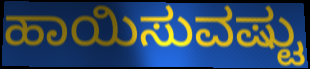
ಹಾಯಿಸುವಷ್ಟು